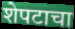
शेपटाचा